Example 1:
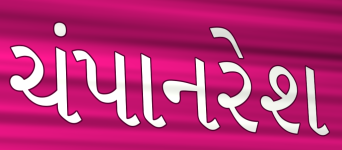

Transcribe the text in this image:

ચંપાનરેશ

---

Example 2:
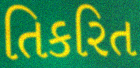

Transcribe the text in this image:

તિકરિત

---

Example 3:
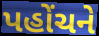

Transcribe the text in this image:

પહોંચને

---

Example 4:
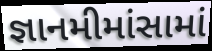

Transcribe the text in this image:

જ્ઞાનમીમાંસામાં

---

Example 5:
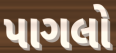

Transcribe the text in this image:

પાગલો